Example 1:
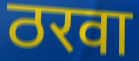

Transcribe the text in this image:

ठरवा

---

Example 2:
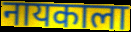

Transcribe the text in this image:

नायकाला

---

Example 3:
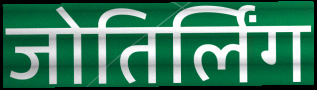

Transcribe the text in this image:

जोतिर्लिंग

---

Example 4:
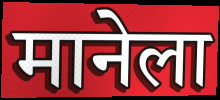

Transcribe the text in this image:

मानेला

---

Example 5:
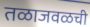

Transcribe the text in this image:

तळाजवळची